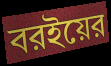
বরইয়ের